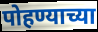
पोहण्याच्या